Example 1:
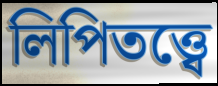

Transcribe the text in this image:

লিপিতত্ত্বে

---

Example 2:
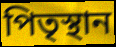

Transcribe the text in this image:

পিতৃস্থান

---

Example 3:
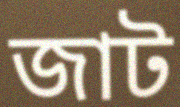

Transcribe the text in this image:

জাট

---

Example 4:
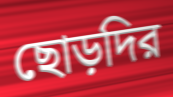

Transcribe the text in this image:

ছোড়দির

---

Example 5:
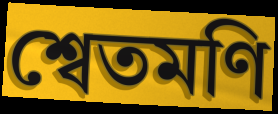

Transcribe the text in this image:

শ্বেতমণি